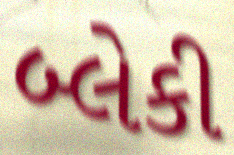
બ્લેકી